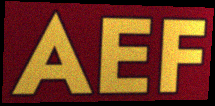
AEF